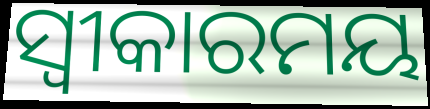
ସ୍ଵୀକାରମୟ